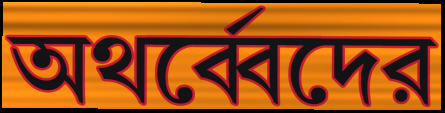
অথর্ব্বেদের